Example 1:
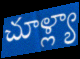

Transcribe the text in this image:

చూళ్ల్యా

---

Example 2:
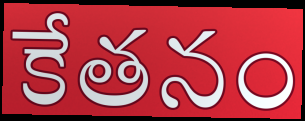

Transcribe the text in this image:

కేతనం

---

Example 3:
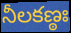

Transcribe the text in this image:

నీలకణ్ఠః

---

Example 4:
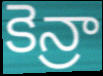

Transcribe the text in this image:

కెన్రా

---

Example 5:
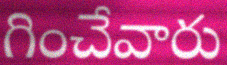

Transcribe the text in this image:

గించేవారు